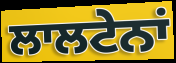
ਲਾਲਟੇਨਾਂ